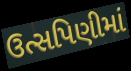
ઉત્સપિણીમાં